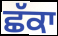
ਛੱਕਾ